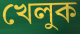
খেলুক